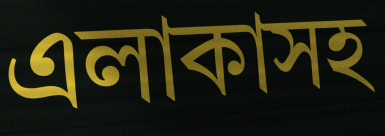
এলাকাসহ